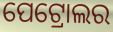
ପେଟ୍ରୋଲର